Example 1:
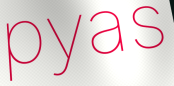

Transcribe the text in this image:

pyas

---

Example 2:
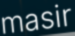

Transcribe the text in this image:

masir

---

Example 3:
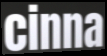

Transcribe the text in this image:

cinna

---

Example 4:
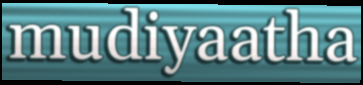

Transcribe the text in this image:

mudiyaatha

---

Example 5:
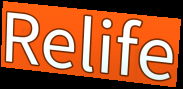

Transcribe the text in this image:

Relife